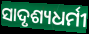
ସାଦୃଶ୍ୟଧର୍ମୀ